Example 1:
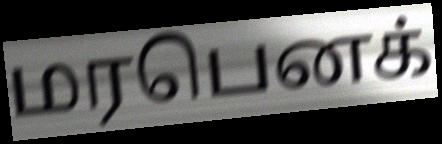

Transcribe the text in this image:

மரபெனக்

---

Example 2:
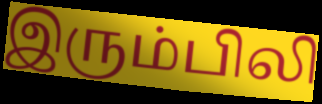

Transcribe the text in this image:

இரும்பிலி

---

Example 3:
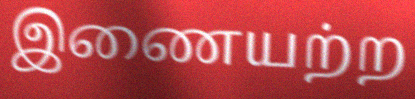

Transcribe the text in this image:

இணையற்ற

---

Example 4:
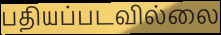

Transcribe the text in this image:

பதியப்படவில்லை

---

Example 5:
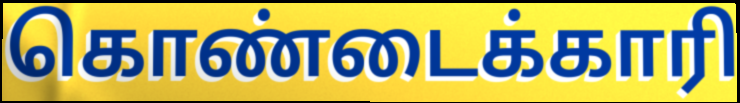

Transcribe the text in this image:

கொண்டைக்காரி